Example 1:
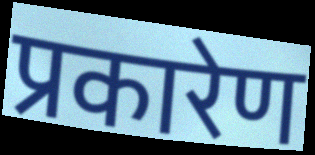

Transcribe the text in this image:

प्रकारेण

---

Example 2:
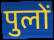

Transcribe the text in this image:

पुलों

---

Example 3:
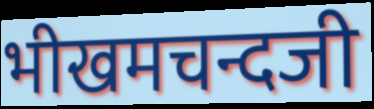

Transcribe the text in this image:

भीखमचन्दजी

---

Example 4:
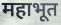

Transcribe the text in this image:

महाभूत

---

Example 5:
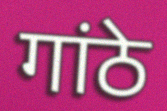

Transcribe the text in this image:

गांठे